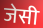
जेसी